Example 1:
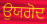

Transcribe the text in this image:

ਉਯਗੋਦ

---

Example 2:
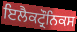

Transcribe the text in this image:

ਇਲੈਕਟ੍ਰੌਨਿਕਸ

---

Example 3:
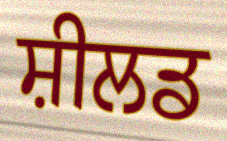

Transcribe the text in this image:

ਸ਼ੀਲਡ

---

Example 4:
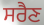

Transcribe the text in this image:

ਸਰੈਣ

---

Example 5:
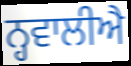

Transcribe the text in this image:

ਨ੍ਹਵਾਲੀਐ